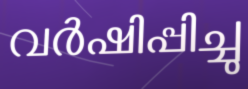
വർഷിപ്പിച്ചു